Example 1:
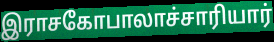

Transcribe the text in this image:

இராசகோபாலாச்சாரியார்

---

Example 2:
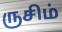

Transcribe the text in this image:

ருசிம்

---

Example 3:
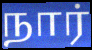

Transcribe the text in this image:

நார்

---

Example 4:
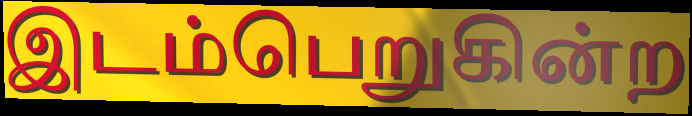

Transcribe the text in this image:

இடம்பெறுகின்ற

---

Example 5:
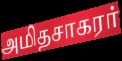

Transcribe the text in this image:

அமிதசாகரர்